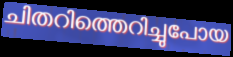
ചിതറിത്തെറിച്ചുപോയ